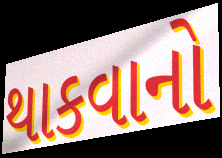
થાકવાનો